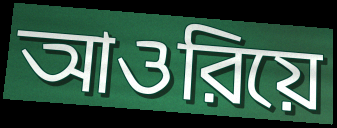
আওরিয়ে